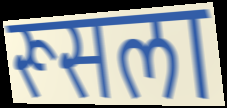
रूसला